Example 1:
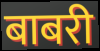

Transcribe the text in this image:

बाबरी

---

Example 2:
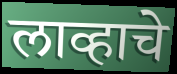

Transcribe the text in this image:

लाव्हाचे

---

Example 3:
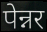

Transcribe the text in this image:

पेन्नर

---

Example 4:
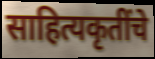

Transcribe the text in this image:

साहित्यकृतींचे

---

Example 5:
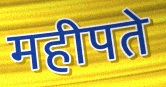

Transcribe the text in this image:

महीपते